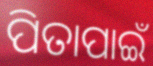
ପିତାପାଇଁ